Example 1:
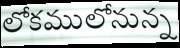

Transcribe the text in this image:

లోకములోనున్న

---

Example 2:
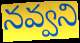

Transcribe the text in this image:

నవ్వని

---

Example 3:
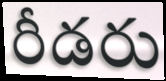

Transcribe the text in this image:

రీడరు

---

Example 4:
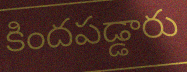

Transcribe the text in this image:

కిందపడ్డారు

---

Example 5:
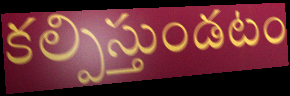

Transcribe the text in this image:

కల్పిస్తుండటం